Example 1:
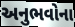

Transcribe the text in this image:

અનુભવોના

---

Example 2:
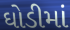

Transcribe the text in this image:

ઘોડીમાં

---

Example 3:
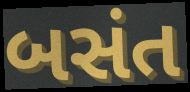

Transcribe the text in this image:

બસંત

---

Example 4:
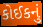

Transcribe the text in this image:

કોઈકનું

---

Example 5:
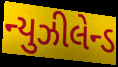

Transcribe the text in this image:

ન્યુઝીલેન્ડ